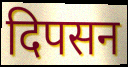
दिपसन